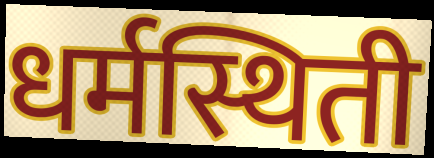
धर्मस्थिती